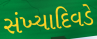
સંખ્યાદિવડે